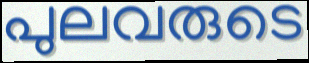
പുലവരുടെ